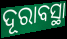
ଦୂରାବସ୍ଥା